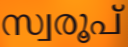
സ്വരൂപ്